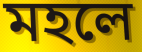
মহলে